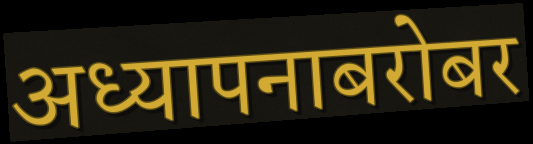
अध्यापनाबरोबर